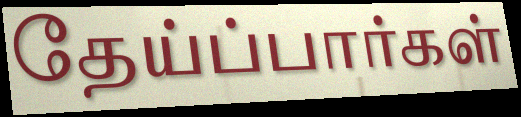
தேய்ப்பார்கள்